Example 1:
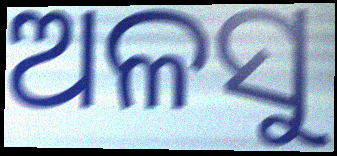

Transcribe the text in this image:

ଅଳସୁ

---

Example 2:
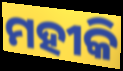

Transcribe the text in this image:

ମହୀକି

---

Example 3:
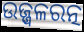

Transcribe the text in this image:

ଉଜ୍ଜ୍ୱଳରତ୍ନ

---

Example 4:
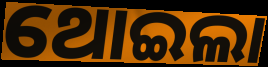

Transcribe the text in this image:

ଥୋଇଲା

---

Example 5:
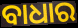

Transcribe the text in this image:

ବାଧାର